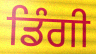
ਡਿੰਗੀ